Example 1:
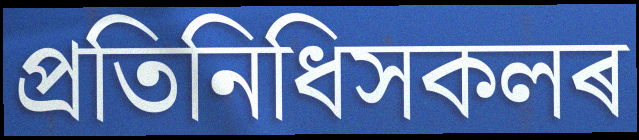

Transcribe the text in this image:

প্ৰতিনিধিসকলৰ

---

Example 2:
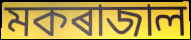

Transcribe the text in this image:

মকৰাজাল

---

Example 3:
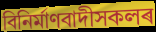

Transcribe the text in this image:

বিনিৰ্মাণবাদীসকলৰ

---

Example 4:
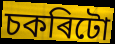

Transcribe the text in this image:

চকৰিটো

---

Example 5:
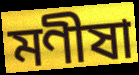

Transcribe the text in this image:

মণীষা